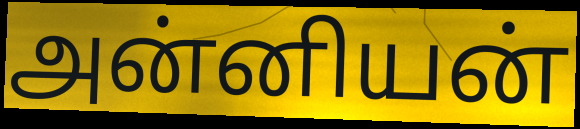
அன்னியன்